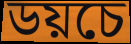
ডয়চে